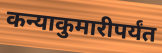
कन्याकुमारीपर्यंत